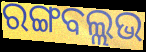
ରଙ୍ଗବଲ୍ଲଭ